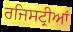
ਰਜਿਸਟ੍ਰੀਆਂ